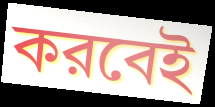
করবেই